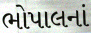
ભોપાલનાં